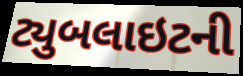
ટ્યુબલાઇટની